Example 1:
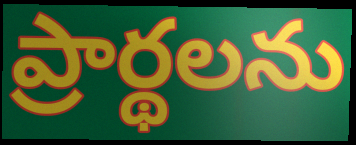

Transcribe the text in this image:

ప్రార్థలను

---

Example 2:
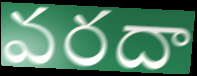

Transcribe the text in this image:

వరదా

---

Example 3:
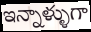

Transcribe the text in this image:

ఇన్నాళ్ళుగా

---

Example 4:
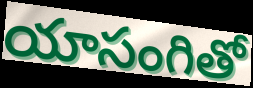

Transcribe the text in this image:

యాసంగితో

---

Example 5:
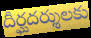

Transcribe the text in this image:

దీర్ఘదర్శులకు